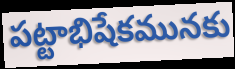
పట్టాభిషేకమునకు